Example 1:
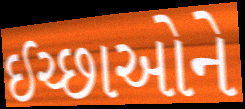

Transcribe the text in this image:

ઈચ્છાઓને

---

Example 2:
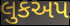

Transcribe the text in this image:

લુકઅપ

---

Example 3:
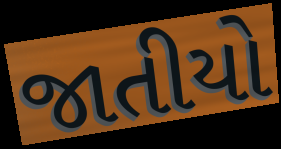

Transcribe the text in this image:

જાતીયો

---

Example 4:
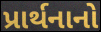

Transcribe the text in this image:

પ્રાર્થનાનો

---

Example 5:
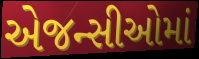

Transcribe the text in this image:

એજન્સીઓમાં